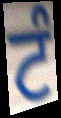
ਟੰ